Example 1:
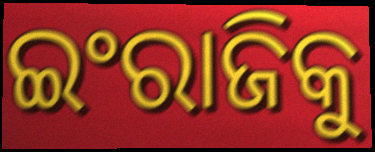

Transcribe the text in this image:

ଇଂରାଜିକୁ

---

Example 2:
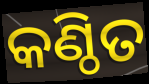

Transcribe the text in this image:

କଣ୍ଠିତ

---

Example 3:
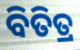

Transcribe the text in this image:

ବିତିତ୍ର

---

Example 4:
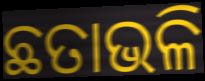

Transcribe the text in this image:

ଛତାଭଳି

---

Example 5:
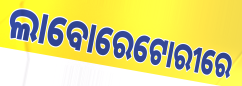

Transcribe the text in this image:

ଲାବୋରେଟୋରୀରେ